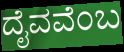
ದೈವವೆಂಬ